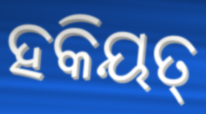
ହକିୟତ୍